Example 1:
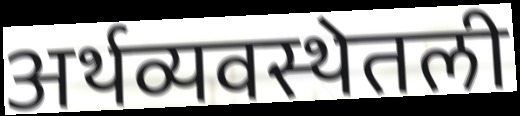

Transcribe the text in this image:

अर्थव्यवस्थेतली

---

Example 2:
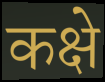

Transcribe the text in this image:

कक्षे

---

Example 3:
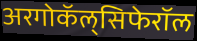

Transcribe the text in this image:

अरगोकॅल्सिफेरॉल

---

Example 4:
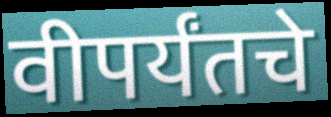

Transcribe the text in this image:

वीपर्यंतचे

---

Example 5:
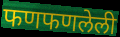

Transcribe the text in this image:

फणफणलेली